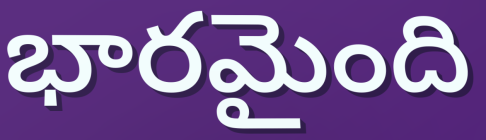
భారమైంది